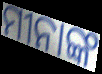
ମୀନାଙ୍କ